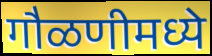
गौळणीमध्ये